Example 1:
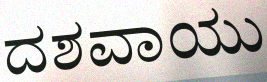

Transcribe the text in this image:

ದಶವಾಯು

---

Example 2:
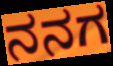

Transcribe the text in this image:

ನನಗ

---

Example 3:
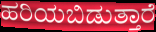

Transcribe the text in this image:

ಹರಿಯಬಿಡುತ್ತಾರೆ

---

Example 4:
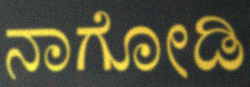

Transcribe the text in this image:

ನಾಗೋಡಿ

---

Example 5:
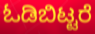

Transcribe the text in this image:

ಓಡಿಬಿಟ್ಟರೆ